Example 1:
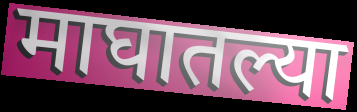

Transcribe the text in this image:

माघातल्या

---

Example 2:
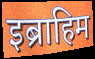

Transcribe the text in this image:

इब्राहिम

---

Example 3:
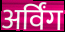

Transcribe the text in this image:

अर्विंग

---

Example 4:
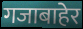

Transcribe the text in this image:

गजाबाहेर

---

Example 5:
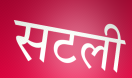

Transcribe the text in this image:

सटली